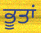
ਭੂਤਾਂ